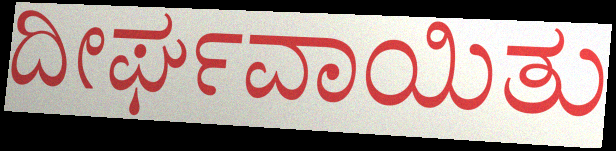
ದೀರ್ಘವಾಯಿತು